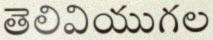
తెలివియుగల